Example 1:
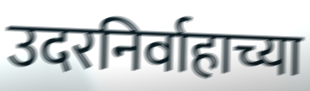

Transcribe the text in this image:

उदरनिर्वाहाच्या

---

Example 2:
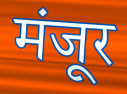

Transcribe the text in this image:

मंजूर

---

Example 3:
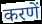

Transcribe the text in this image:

करणें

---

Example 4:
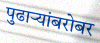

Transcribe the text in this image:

पुढाऱ्यांबरोबर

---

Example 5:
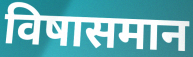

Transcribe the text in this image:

विषासमान